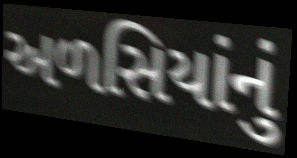
અળસિયાંનું